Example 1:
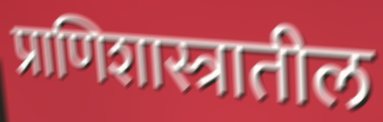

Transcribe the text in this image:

प्राणिशास्त्रातील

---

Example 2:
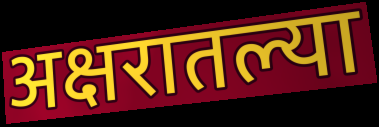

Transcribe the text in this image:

अक्षरातल्या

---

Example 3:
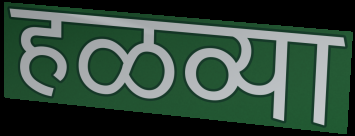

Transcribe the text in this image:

हळव्या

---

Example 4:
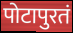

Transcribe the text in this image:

पोटापुरतं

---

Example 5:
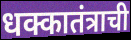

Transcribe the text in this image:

धक्कातंत्राची